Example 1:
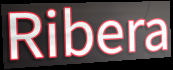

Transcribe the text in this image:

Ribera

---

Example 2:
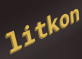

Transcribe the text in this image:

litkon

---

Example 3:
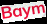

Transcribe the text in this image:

Baym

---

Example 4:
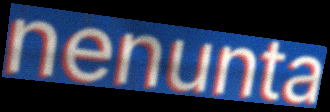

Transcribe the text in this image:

nenunta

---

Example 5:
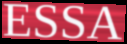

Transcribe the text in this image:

ESSA